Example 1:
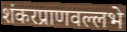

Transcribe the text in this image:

शंकरप्राणवल्लभे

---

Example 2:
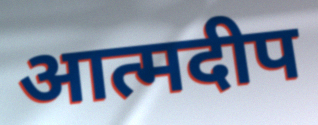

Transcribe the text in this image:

आत्मदीप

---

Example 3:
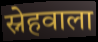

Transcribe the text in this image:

स्नेहवाला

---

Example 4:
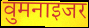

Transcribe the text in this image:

वुमनाइजर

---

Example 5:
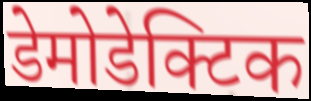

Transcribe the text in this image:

डेमोडेक्टिक